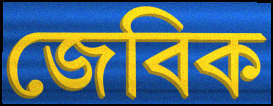
জেবিক